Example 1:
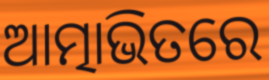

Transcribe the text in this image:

ଆତ୍ମାଭିତରେ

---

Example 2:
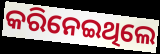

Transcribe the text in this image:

କରିନେଇଥିଲେ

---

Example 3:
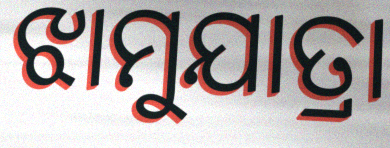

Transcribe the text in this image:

ଝାମୁଯାତ୍ରା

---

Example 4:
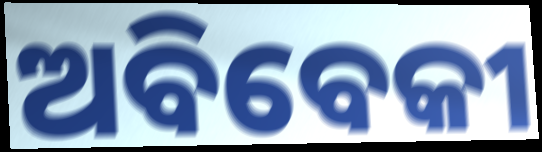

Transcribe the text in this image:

ଅବିବେକୀ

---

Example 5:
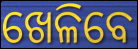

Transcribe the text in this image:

ଖେଳିବେ